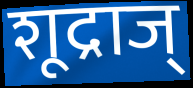
शूद्राज्